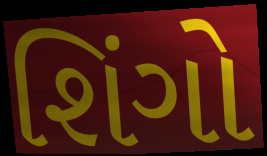
શિંગો